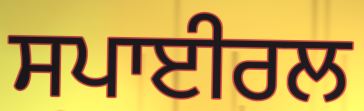
ਸਪਾਈਰਲ